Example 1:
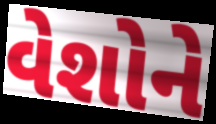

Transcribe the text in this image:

વેશોને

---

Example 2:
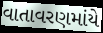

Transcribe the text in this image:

વાતાવરણમાંયે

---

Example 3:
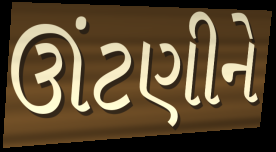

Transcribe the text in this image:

ઊંટણીને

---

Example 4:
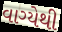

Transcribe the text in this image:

વાગ્યેથી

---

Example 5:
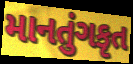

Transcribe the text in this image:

માનતુંગકૃત